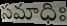
సమాధిః